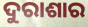
ଦୁରାଶାର